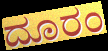
ದೂರಂ